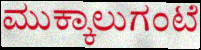
ಮುಕ್ಕಾಲುಗಂಟೆ